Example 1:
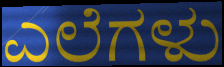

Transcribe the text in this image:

ಎಲೆಗಳು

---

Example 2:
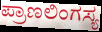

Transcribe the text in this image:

ಪ್ರಾಣಲಿಂಗಸ್ಯ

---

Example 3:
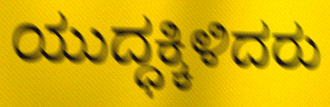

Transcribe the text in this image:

ಯುದ್ಧಕ್ಕಿಳಿದರು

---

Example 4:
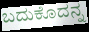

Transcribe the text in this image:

ಬದುಕೊದನ್ನ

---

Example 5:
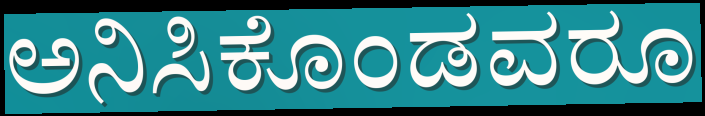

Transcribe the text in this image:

ಅನಿಸಿಕೊಂಡವರೂ